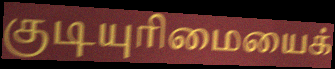
குடியுரிமையைக்